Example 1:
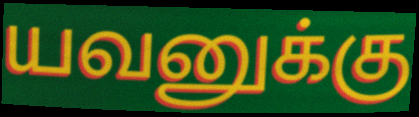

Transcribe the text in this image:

யவனுக்கு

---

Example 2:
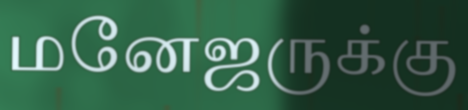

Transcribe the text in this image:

மனேஜருக்கு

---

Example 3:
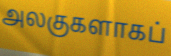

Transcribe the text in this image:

அலகுகளாகப்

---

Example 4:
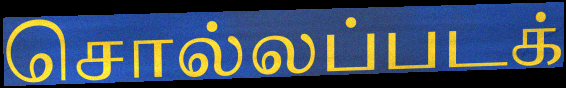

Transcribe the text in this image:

சொல்லப்படக்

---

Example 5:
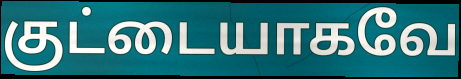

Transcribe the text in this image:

குட்டையாகவே